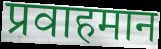
प्रवाहमान